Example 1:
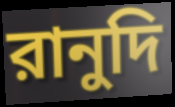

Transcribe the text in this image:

রানুদি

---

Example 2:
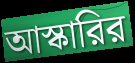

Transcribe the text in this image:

আস্কারির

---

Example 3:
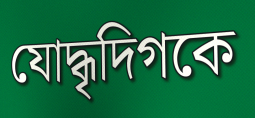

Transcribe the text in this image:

যোদ্ধৃদিগকে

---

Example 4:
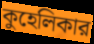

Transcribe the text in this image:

কুহেলিকার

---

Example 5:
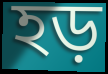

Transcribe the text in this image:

হড়